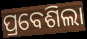
ପ୍ରବେଶିଲା